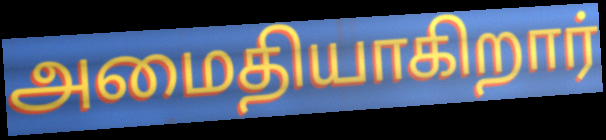
அமைதியாகிறார்